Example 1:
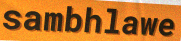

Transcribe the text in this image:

sambhlawe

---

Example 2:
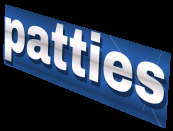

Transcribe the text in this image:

patties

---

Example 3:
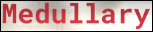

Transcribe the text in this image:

Medullary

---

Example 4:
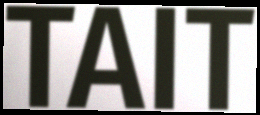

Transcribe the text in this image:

TAIT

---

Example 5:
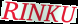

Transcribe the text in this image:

RINKU